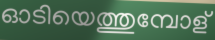
ഓടിയെത്തുമ്പോള്